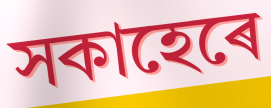
সকাহেৰে